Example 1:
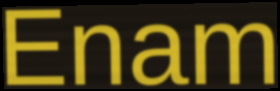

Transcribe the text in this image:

Enam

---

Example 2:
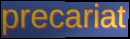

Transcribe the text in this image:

precariat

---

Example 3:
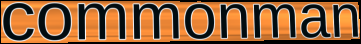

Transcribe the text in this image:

commonman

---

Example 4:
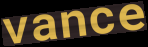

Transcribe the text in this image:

vance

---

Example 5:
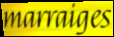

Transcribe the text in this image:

marraiges